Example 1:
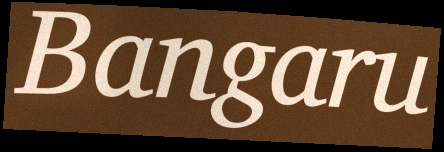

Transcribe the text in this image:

Bangaru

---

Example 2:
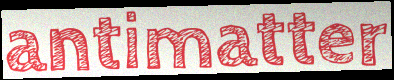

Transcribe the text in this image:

antimatter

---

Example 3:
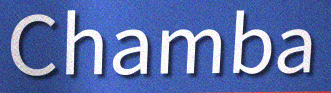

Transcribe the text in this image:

Chamba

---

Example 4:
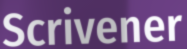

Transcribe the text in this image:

Scrivener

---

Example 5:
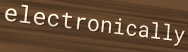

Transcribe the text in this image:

electronically